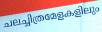
ചലച്ചിത്രമേളകളിലും